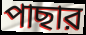
পাছার